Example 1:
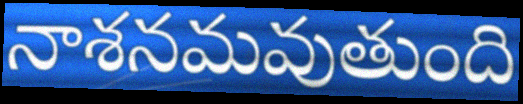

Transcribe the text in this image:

నాశనమవుతుంది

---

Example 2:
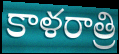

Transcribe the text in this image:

కాళరాత్రి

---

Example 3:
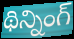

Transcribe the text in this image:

థిన్నింగ్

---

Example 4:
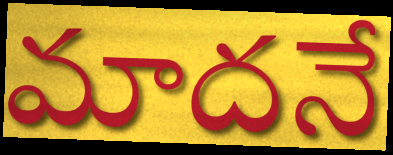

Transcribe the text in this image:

మాదనే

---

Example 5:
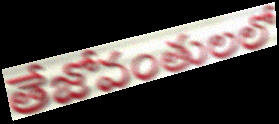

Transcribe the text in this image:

తేజోవంతులలో